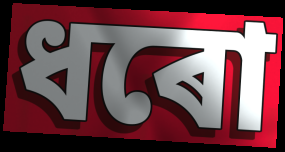
ধৰো